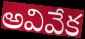
అవివేక